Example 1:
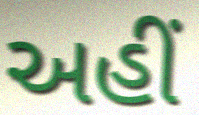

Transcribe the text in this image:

અહીં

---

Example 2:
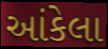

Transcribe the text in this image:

આંકેલા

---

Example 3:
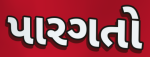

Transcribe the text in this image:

પારગતો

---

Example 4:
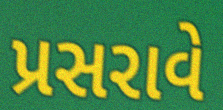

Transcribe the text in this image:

પ્રસરાવે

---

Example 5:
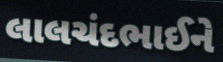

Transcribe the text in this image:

લાલચંદભાઈને